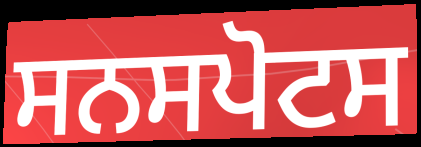
ਸਨਸਪੋਟਸ